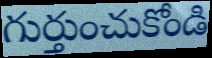
గుర్తుంచుకోండి